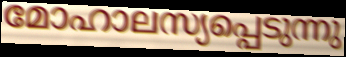
മോഹാലസ്യപ്പെടുന്നു